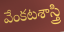
వేంకటశాస్త్రి